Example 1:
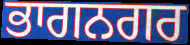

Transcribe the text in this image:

ਭਾਗਨਗਰ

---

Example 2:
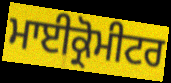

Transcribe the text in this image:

ਮਾਈਕ੍ਰੋਮੀਟਰ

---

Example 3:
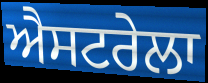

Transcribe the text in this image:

ਐਸਟਰੇਲਾ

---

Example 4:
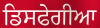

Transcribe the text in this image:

ਡਿਸਫੇਗੀਆ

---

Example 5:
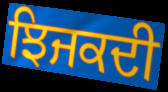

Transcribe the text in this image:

ਝਿਜਕਦੀ